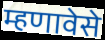
म्हणावेसे